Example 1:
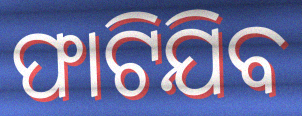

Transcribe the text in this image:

ଫାଟିଯିବ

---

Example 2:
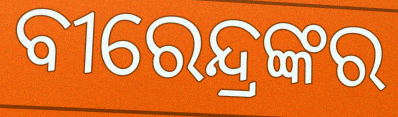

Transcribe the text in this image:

ବୀରେନ୍ଦ୍ରଙ୍କର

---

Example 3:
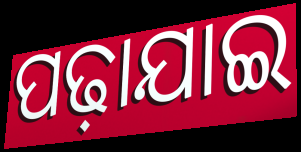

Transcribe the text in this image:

ପଢ଼ାଯାଇ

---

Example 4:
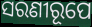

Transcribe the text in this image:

ସରଣୀରୂପେ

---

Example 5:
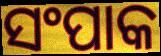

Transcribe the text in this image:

ସଂପାକ